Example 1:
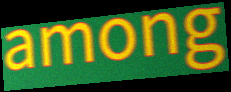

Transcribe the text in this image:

among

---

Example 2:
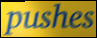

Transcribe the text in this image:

pushes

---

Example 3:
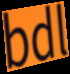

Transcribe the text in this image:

bdl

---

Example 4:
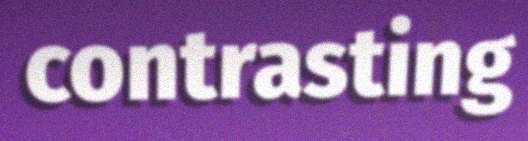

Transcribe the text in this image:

contrasting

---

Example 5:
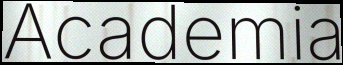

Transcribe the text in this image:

Academia